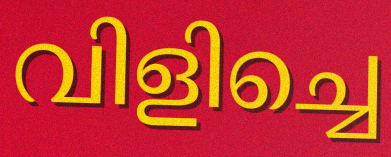
വിളിച്ചെ